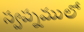
స్వప్నములో